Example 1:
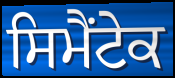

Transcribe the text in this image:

ਸਿਮੈਂਟੇਕ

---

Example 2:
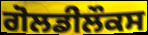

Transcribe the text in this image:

ਗੋਲਡੀਲੌਕਸ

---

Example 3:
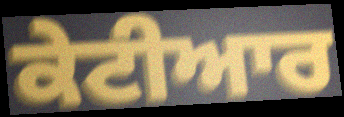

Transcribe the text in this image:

ਕੇਟੀਆਰ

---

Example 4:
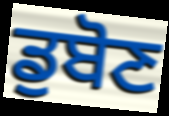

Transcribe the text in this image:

ਡੁਬੋਣ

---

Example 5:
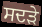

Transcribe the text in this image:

ਸਦੜੇ